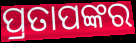
ପ୍ରତାପଙ୍କର